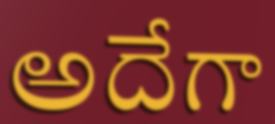
అదేగా